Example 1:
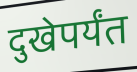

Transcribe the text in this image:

दुखेपर्यंत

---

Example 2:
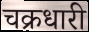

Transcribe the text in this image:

चक्रधारी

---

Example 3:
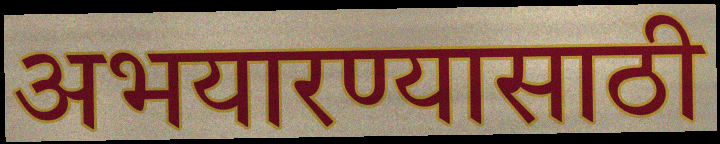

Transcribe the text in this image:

अभयारण्यासाठी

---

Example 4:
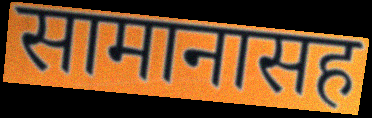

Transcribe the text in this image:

सामानासह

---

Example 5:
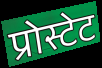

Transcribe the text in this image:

प्रोस्टेट